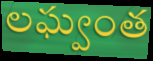
లఘ్వంత